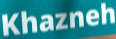
Khazneh